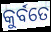
କୁର୍ବତେ